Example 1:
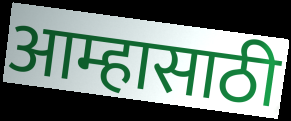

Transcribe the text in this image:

आम्हासाठी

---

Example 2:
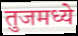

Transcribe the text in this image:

तुजमध्ये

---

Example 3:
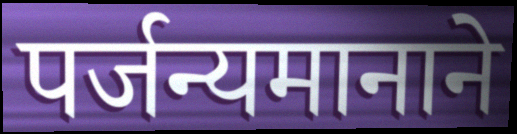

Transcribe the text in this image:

पर्जन्यमानाने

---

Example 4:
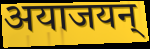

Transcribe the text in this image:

अयाजयन्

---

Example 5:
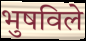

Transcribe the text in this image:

भुषविले